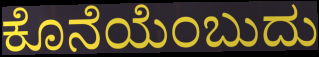
ಕೊನೆಯೆಂಬುದು